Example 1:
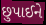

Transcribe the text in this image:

છુપાઈને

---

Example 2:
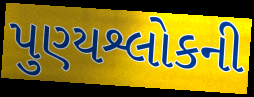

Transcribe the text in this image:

પુણ્યશ્લોકની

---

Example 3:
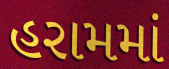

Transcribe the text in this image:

હરામમાં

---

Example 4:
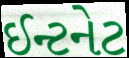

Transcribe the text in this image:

ઈન્ટનેટ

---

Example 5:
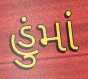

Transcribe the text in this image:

હુંમાં